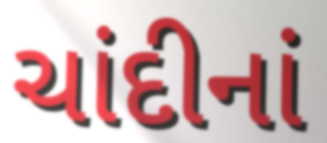
ચાંદીનાં